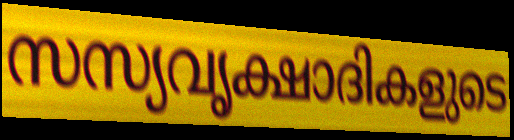
സസ്യവൃക്ഷാദികളുടെ